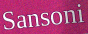
Sansoni